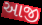
આજી